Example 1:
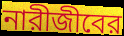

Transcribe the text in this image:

নারীজীবের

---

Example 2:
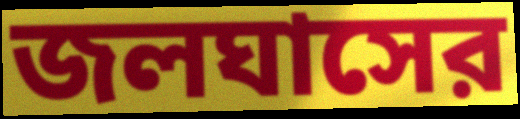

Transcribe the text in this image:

জলঘাসের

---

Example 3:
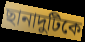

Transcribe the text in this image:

ছানাদুটিকে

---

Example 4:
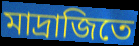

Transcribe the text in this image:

মাদ্রাজিতে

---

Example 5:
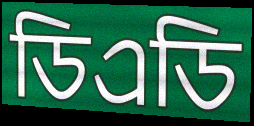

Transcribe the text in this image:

ডিএডি